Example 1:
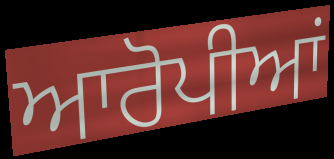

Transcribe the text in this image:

ਆਰੋਪੀਆਂ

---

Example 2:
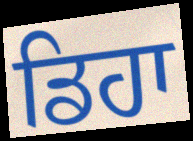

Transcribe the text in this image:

ਡਿਹਾ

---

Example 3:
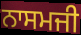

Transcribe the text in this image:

ਨਾਸਮਜੀ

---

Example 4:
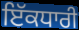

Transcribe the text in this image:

ਇੱਕਧਾਰੀ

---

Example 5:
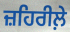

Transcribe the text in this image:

ਜ਼ਹਿਰੀਲ਼ੇ